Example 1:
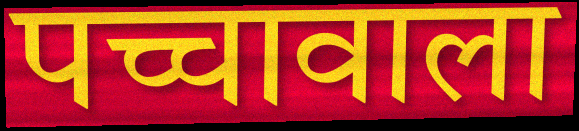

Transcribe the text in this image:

पच्चावाला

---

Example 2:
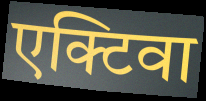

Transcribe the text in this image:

एक्टिवा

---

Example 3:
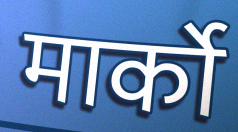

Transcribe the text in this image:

मार्को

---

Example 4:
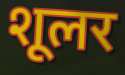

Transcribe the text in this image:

शूलर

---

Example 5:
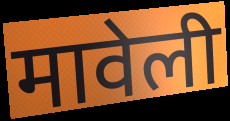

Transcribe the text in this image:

मावेली